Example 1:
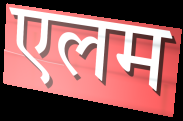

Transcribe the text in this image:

एलम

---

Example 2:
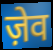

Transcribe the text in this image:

ज़ेव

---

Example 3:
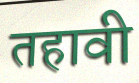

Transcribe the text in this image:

तहावी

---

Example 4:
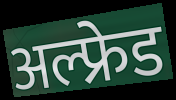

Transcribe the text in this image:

अल्फ्रेड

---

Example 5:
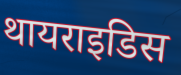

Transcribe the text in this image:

थायराइडिस